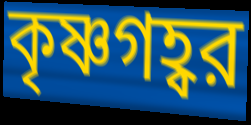
কৃষ্ণগহ্বর